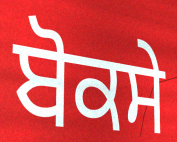
ਬੋਕਸੇ